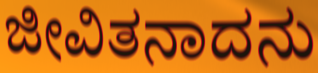
ಜೀವಿತನಾದನು